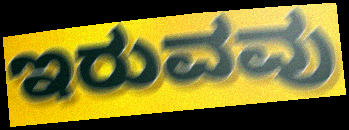
ಇರುವವು